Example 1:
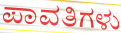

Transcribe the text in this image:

ಪಾವತಿಗಳು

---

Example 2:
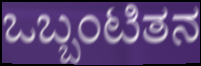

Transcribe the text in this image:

ಒಬ್ಬಂಟಿತನ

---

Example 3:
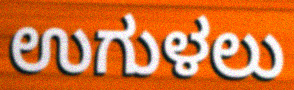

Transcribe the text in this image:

ಉಗುಳಲು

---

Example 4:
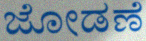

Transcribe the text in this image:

ಜೋಡಣೆ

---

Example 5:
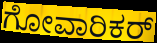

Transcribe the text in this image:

ಗೋವಾರಿಕರ್